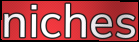
niches